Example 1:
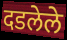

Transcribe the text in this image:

दडलेले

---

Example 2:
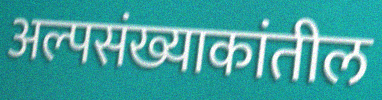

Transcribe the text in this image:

अल्पसंख्याकांतील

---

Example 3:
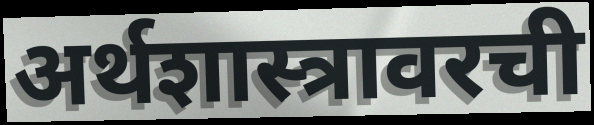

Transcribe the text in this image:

अर्थशास्त्रावरची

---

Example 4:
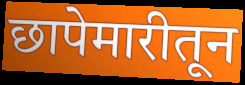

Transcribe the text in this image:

छापेमारीतून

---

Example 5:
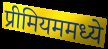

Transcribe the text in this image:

प्रीमियममध्ये